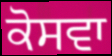
ਕੋਸਵਾ